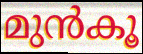
മുൻകൂ